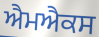
ਐਮਐਕਸ